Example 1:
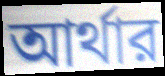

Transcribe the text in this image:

আর্থার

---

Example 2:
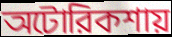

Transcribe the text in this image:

অটোরিকশায়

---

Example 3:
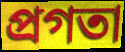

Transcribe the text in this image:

প্রগতা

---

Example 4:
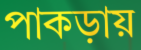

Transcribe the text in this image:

পাকড়ায়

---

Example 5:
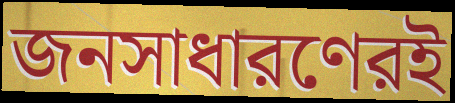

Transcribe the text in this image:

জনসাধারণেরই